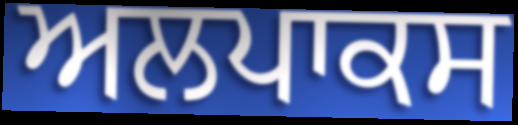
ਅਲਪਾਕਸ